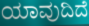
ಯಾವುದಿದೆ